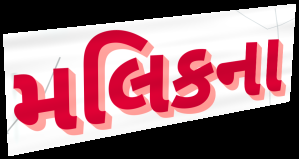
મલિકના